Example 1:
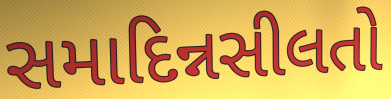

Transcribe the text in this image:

સમાદિન્નસીલતો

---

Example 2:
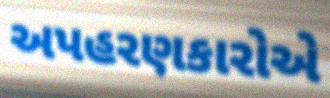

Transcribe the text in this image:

અપહરણકારોએ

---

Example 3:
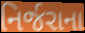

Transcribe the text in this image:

નિર્જરાના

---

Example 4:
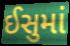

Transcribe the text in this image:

ઈસુમાં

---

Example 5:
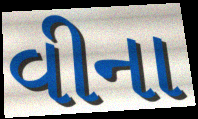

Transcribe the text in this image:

વીના